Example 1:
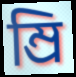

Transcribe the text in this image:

ম্রি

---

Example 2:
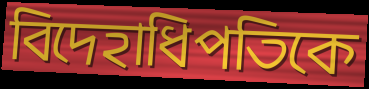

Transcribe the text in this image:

বিদেহাধিপতিকে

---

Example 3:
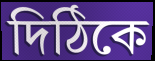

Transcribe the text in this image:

দিঠিকে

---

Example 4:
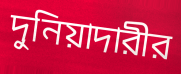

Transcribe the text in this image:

দুনিয়াদারীর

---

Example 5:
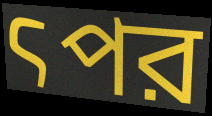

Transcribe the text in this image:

ৎপর